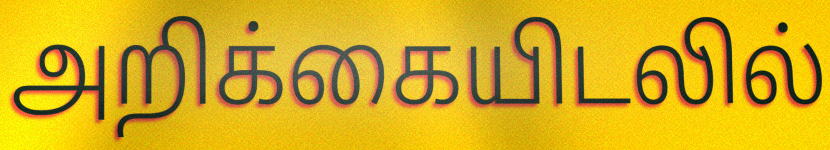
அறிக்கையிடலில்